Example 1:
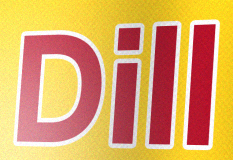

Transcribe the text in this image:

Dill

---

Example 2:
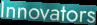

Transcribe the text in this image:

Innovators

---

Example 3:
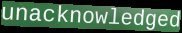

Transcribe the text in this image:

unacknowledged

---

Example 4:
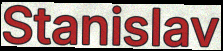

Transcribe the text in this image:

Stanislav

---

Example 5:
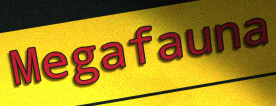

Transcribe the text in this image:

Megafauna